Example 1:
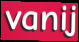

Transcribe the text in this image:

vanij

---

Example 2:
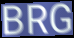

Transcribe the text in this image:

BRG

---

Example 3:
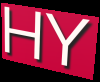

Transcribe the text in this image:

HY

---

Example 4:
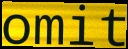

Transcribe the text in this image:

omit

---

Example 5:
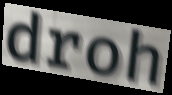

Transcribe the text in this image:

droh